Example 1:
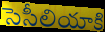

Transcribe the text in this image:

సెసీలియాకి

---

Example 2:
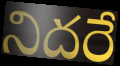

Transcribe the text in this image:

నిదరే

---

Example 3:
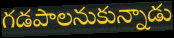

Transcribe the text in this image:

గడపాలనుకున్నాడు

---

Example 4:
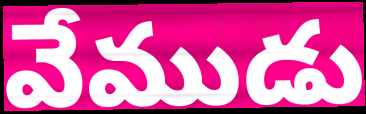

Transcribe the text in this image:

వేముడు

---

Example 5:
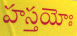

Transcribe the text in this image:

హస్తయోః